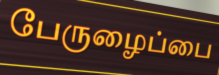
பேருழைப்பை